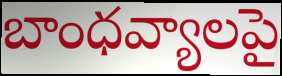
బాంధవ్యాలపై